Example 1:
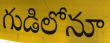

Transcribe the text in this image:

గుడిలోనూ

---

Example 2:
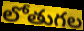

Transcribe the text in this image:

లోతుగల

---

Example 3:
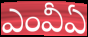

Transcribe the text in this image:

ఎంవీఏ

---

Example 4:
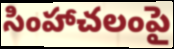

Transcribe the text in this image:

సింహాచలంపై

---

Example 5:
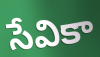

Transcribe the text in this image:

సేవికా